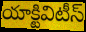
యాక్టివిటీస్